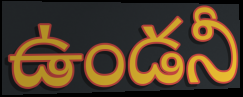
ఉండనీ